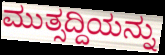
ಮುತ್ಸದ್ದಿಯನ್ನು